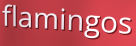
flamingos